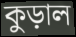
কুড়াল